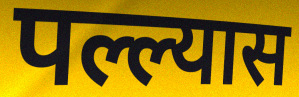
पल्ल्यास